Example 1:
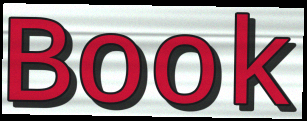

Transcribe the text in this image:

Book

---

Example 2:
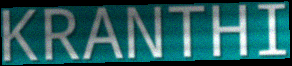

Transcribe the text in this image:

KRANTHI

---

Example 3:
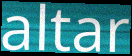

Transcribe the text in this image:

altar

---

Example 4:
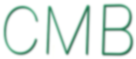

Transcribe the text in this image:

CMB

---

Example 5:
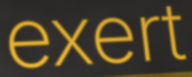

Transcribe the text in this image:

exert